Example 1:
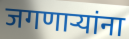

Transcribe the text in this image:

जगणाऱ्यांना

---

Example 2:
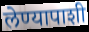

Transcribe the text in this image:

लेण्यापाशी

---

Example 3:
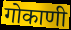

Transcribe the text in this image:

गोकाणी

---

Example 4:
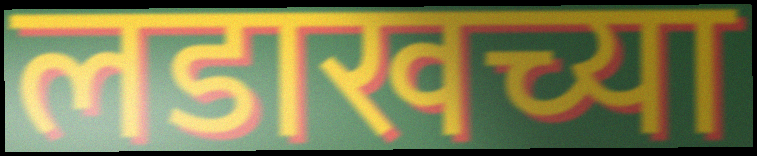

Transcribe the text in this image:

लडाखच्या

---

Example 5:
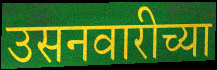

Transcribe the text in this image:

उसनवारीच्या